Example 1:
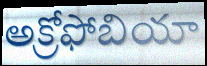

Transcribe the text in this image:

అక్రోఫోబియా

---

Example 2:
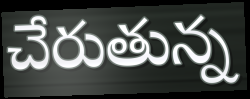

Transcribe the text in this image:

చేరుతున్న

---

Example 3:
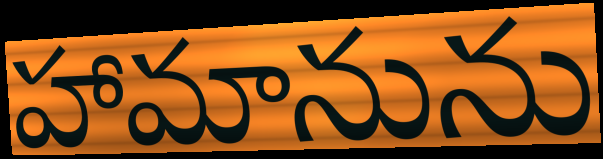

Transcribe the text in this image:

హామానును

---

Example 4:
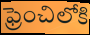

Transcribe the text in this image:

ఫ్రెంచిలోకి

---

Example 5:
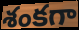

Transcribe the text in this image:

శంకగా